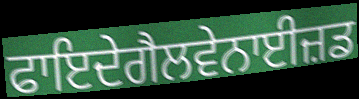
ਫਾਇਦੇਗੈਲਵੇਨਾਈਜ਼ਡ